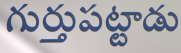
గుర్తుపట్టాడు